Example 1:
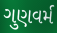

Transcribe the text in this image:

ગુણવર્મ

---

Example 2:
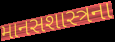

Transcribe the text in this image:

માનસશાસ્ત્રના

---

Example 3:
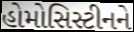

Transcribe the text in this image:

હોમોસિસ્ટીનને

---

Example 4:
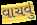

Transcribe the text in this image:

વાચવું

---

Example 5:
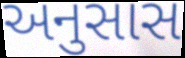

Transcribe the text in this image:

અનુસાસ